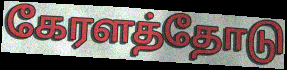
கேரளத்தோடு